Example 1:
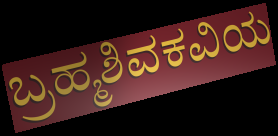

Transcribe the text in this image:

ಬ್ರಹ್ಮಶಿವಕವಿಯ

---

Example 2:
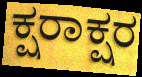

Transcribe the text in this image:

ಕ್ಷರಾಕ್ಷರ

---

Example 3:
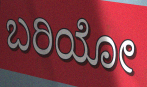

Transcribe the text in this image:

ಬರಿಯೋ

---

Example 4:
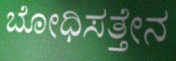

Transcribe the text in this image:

ಬೋಧಿಸತ್ತೇನ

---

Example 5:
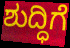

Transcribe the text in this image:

ಶುದ್ಧಿಗೆ